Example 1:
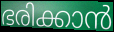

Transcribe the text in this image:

ഭരിക്കാൻ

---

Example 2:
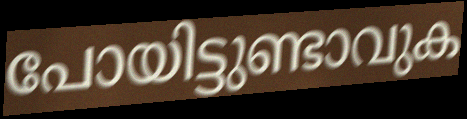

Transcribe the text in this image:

പോയിട്ടുണ്ടാവുക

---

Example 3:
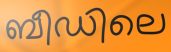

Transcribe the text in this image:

ബീഡിലെ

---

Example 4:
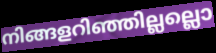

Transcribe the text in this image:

നിങ്ങളറിഞ്ഞില്ലല്ലൊ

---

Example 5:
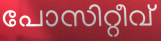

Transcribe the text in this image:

പോസിറ്റീവ്